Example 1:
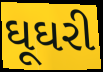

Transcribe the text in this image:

ઘૂઘરી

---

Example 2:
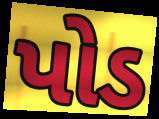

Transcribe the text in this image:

પોડ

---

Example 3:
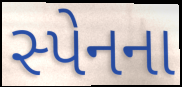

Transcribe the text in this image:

સ્પેનના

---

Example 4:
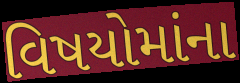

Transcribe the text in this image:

વિષયોમાંના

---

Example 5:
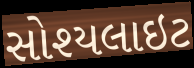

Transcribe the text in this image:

સોશ્યલાઇટ